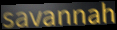
savannah